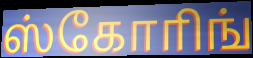
ஸ்கோரிங்